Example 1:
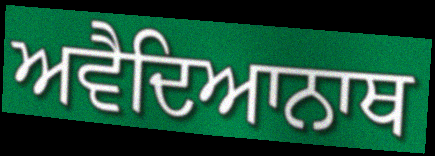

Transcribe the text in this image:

ਅਵੈਦਿਆਨਾਥ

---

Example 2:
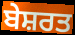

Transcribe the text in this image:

ਬੇਸ਼ਰਤ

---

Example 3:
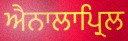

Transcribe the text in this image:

ਐਨਾਲਾਪ੍ਰਿਲ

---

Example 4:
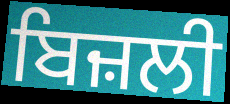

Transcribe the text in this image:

ਬਿਜ਼ਲੀ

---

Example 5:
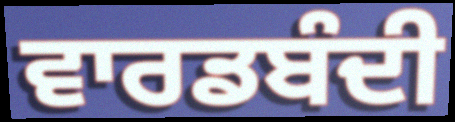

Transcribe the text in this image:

ਵਾਰਡਬੰਦੀ